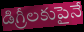
డిగ్రీలకుపైనే